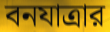
বনযাত্রার